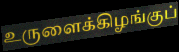
உருளைக்கிழங்குப்